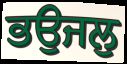
ਭਉਜਲੁ